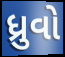
ધ્રુવો